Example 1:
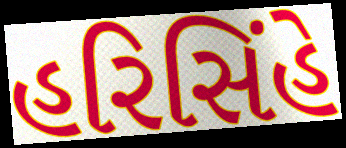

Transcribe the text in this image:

હરિસિંહે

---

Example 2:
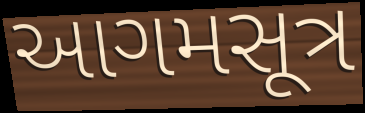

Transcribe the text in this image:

આગમસૂત્ર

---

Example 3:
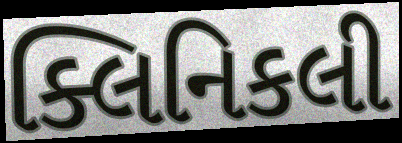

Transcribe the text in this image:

ક્લિનિકલી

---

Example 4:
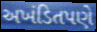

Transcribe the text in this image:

અખંડિતપણે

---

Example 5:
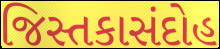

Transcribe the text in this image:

જિસ્તકાસંદોહ